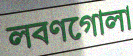
লবণগোলা